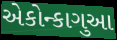
એકોન્કાગુઆ